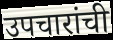
उपचारांची